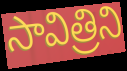
సావిత్రిని